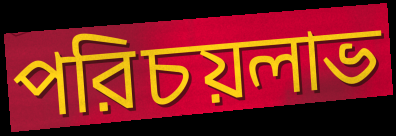
পরিচয়লাভ